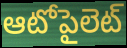
ఆటోపైలెట్